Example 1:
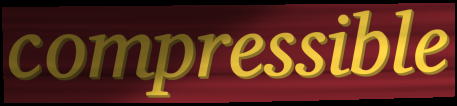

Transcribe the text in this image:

compressible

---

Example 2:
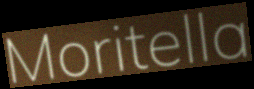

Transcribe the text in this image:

Moritella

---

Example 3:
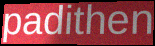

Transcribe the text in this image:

padithen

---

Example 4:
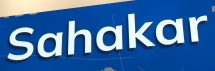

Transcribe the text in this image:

Sahakar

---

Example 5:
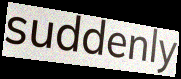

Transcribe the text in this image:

suddenly